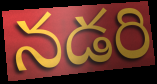
నడరి